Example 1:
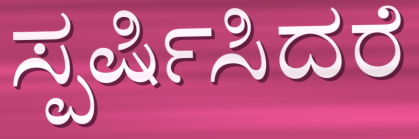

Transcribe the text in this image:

ಸ್ಪರ್ಷಿಸಿದರೆ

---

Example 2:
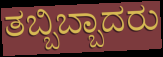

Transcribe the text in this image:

ತಬ್ಬಿಬ್ಬಾದರು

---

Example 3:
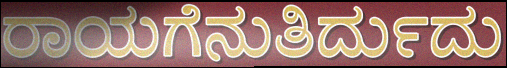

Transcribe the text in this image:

ರಾಯಗೆನುತಿರ್ದುದು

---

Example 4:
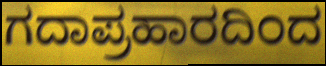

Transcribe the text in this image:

ಗದಾಪ್ರಹಾರದಿಂದ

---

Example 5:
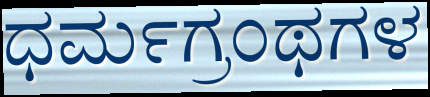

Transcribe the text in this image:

ಧರ್ಮಗ್ರಂಥಗಳ